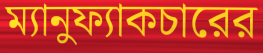
ম্যানুফ্যাকচারের